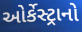
ઓર્કેસ્ટ્રાનો